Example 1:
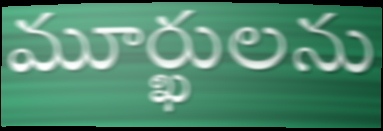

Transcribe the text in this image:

మూర్ఖులను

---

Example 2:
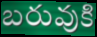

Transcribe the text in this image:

బరువుకి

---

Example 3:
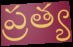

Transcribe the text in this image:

ప్రత్య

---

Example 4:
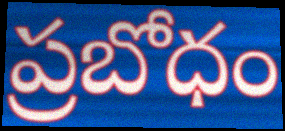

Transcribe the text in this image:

ప్రబోధం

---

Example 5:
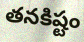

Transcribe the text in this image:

తనకిష్టం